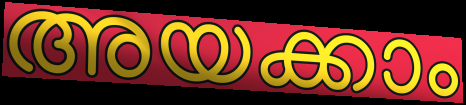
അയക്കാം